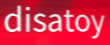
disatoy